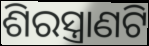
ଶିରସ୍ତ୍ରାଣଟି